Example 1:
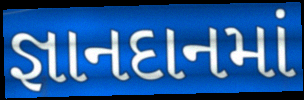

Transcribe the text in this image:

જ્ઞાનદાનમાં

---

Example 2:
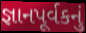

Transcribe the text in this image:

જ્ઞાનપૂર્વકનું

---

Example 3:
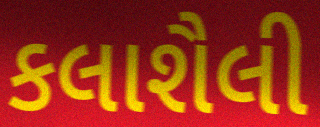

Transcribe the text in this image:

કલાશૈલી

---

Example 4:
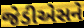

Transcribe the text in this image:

જેડીએસને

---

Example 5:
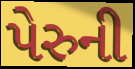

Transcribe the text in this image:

પેરુની